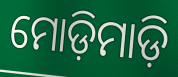
ମୋଡ଼ିମାଡ଼ି